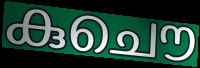
കുചൌ